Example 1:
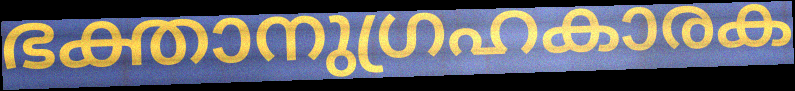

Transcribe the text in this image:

ഭക്താനുഗ്രഹകാരക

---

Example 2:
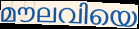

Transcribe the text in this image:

മൗലവിയെ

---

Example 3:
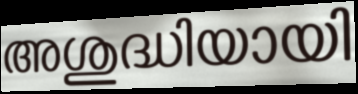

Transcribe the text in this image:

അശുദ്ധിയായി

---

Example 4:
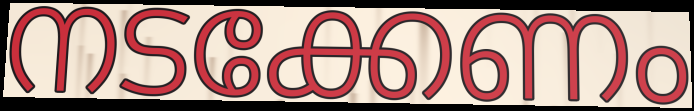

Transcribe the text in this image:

നടക്കേണം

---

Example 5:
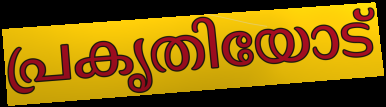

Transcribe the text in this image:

പ്രകൃതിയോട്